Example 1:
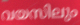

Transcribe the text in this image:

വയസിലും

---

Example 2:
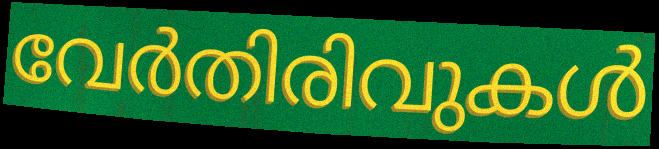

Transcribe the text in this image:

വേർതിരിവുകൾ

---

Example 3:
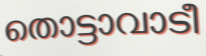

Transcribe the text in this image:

തൊട്ടാവാടീ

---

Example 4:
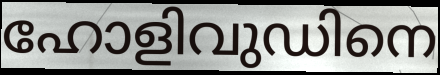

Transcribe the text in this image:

ഹോളിവുഡിനെ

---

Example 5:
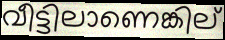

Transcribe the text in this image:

വീട്ടിലാണെങ്കില്